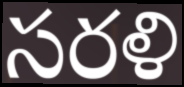
సరళి